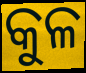
କୁଳ